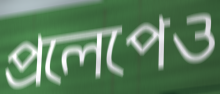
প্রলেপেও